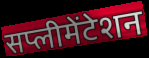
सप्लीमेंटेशन